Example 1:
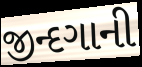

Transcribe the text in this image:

જીન્દગાની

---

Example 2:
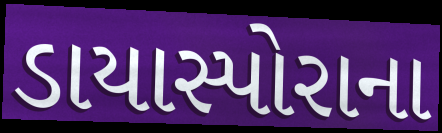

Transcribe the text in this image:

ડાયાસ્પોરાના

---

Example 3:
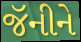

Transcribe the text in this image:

જૅનીને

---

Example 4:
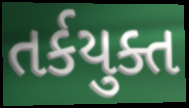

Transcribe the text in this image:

તર્કયુક્ત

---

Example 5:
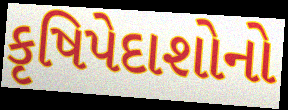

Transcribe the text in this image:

કૃષિપેદાશોનો